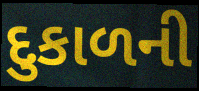
દુકાળની